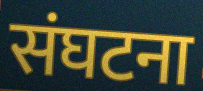
संघटना